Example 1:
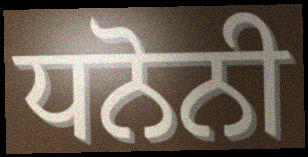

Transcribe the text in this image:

ਧਨੋਨੀ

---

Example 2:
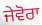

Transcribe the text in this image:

ਜੇਵੋਰਾ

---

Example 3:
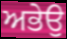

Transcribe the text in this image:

ਅਭੇਉ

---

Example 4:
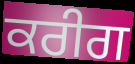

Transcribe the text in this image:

ਕਰੀਗ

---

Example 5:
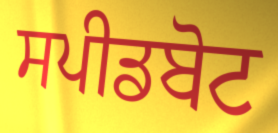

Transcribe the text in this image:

ਸਪੀਡਬੋਟ